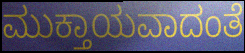
ಮುಕ್ತಾಯವಾದಂತೆ